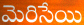
మెరిసేయి